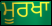
ਮੂਰਖਾ